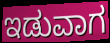
ಇಡುವಾಗ